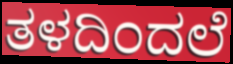
ತಳದಿಂದಲೆ